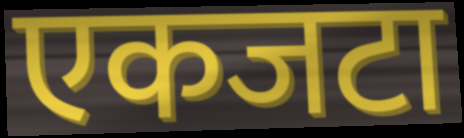
एकजटा